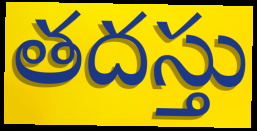
తదస్తు